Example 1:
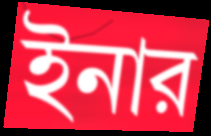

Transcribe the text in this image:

ইনার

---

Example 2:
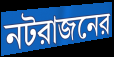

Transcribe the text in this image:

নটরাজনের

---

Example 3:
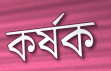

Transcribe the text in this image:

কর্ষক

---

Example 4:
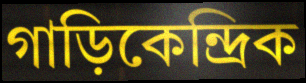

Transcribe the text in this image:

গাড়িকেন্দ্রিক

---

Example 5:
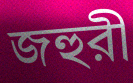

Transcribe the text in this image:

জহুরী